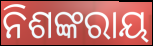
ନିଶଙ୍କରାୟ